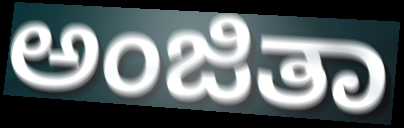
ಅಂಜಿತಾ